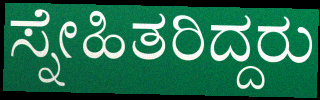
ಸ್ನೇಹಿತರಿದ್ದರು